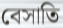
বেসাতি